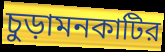
চুড়ামনকাটির